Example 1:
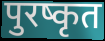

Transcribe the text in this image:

पुरष्कृत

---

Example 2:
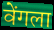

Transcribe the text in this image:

वेंगला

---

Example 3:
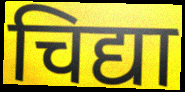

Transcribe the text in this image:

चिद्या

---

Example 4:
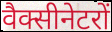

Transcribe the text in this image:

वैक्सीनेटरों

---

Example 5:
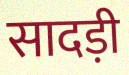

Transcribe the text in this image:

सादड़ी